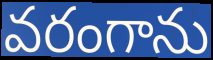
వరంగాను